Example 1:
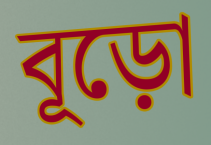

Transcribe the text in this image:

বূড়ো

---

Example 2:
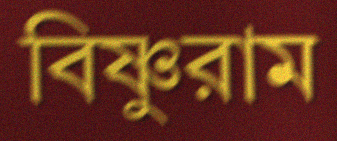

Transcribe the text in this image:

বিষ্ণুরাম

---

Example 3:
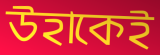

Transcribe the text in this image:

উহাকেই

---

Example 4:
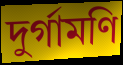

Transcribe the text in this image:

দুর্গামণি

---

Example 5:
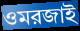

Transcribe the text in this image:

ওমরজাই